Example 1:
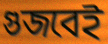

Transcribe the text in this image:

গুজবেই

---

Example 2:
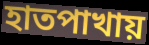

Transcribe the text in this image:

হাতপাখায়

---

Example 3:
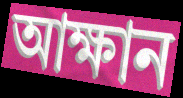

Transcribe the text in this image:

আক্ষান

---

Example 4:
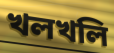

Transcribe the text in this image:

খলখলি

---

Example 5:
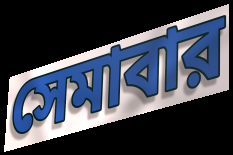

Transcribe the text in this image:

সেমাবার